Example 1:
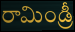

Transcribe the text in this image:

రామిండ్రీ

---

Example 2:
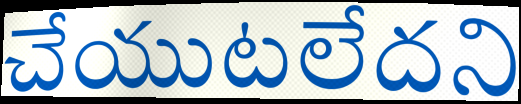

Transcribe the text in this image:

చేయుటలేదని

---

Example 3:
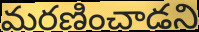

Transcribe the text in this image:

మరణించాడని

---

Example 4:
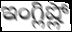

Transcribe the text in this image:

ఇంగ్లిష్లో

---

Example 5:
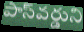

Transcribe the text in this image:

పాస్‌వర్డుని